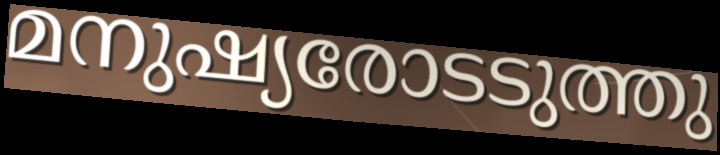
മനുഷ്യരോടടുത്തു